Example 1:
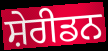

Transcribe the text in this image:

ਸ਼ੇਰੀਡਨ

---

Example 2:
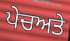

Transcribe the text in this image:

ਪੇਚਅਤੇ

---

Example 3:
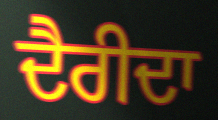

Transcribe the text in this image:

ਦੈਰੀਦਾ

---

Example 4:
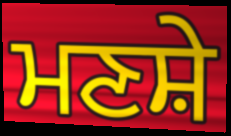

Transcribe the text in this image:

ਮਣਸ਼ੇ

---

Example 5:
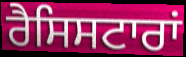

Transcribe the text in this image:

ਰੈਸਿਸਟਾਰਾਂ